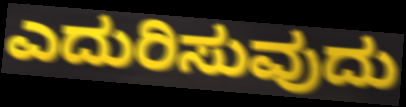
ಎದುರಿಸುವುದು